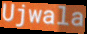
Ujwala